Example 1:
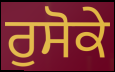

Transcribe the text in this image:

ਰੁਸੋਕੇ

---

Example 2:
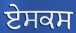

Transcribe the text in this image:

ਏਸਕਸ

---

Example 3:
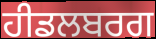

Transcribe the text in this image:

ਹੀਡਲਬਰਗ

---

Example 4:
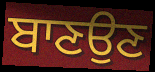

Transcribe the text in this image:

ਬਾਣਉਣ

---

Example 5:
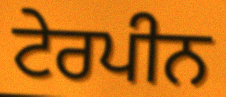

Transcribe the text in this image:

ਟੇਰਪੀਨ